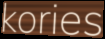
kories